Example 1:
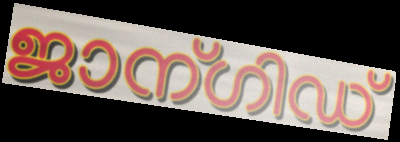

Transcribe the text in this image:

ജാന്ഗിഡ്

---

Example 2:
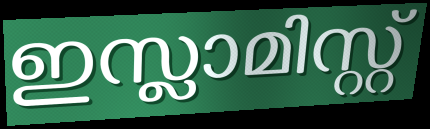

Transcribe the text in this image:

ഇസ്ലാമിസ്റ്റ്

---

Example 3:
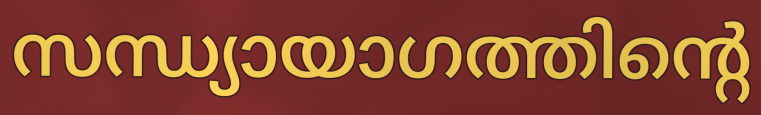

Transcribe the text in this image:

സന്ധ്യായാഗത്തിന്റെ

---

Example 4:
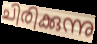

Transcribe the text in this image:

ചിരിക്കുന്നു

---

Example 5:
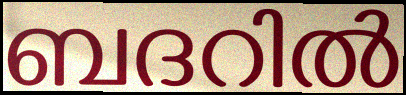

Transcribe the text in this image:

ബദറിൽ